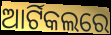
ଆର୍ଟିକଲରେ